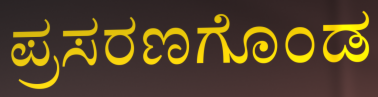
ಪ್ರಸರಣಗೊಂಡ